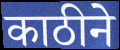
काठीने